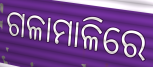
ଗଳାମାଳିରେ